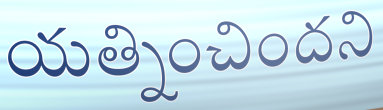
యత్నించిందని